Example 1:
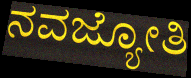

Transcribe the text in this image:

ನವಜ್ಯೋತಿ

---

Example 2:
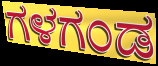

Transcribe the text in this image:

ಗಳಗಂಡ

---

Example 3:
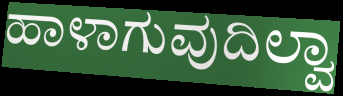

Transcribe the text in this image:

ಹಾಳಾಗುವುದಿಲ್ವಾ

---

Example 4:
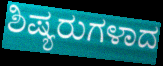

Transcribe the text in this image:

ಶಿಷ್ಯರುಗಳಾದ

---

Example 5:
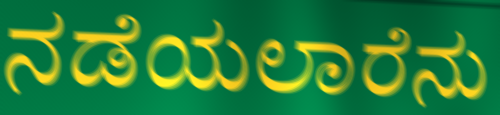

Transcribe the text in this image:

ನಡೆಯಲಾರೆನು